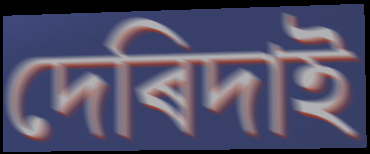
দেৰিদাই